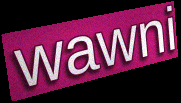
wawni